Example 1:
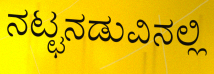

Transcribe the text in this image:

ನಟ್ಟನಡುವಿನಲ್ಲಿ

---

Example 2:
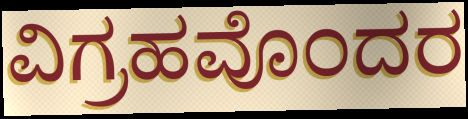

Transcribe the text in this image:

ವಿಗ್ರಹವೊಂದರ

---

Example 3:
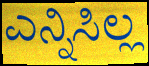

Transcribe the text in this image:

ಎನ್ನಿಸಿಲ್ಲ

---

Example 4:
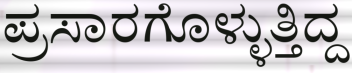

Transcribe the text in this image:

ಪ್ರಸಾರಗೊಳ್ಳುತ್ತಿದ್ದ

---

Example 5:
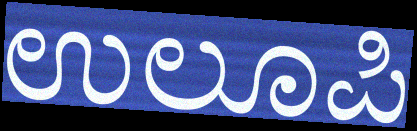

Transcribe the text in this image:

ಉಲೂಪಿ